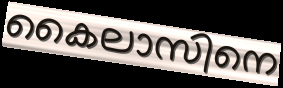
കൈലാസിനെ